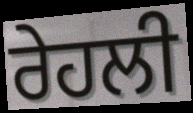
ਰੇਹਲੀ